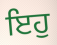
ਇਹੁ